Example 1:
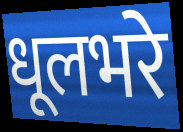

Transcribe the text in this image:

धूलभरे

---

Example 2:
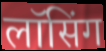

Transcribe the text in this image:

लॉसिंग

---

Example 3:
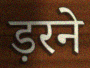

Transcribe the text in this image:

ड़रने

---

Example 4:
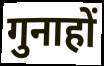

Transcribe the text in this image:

गुनाहों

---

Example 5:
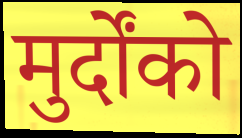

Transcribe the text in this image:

मुर्दोंको